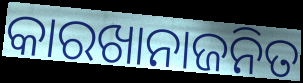
କାରଖାନାଜନିତ